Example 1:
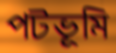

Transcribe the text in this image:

পটভূমি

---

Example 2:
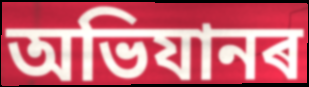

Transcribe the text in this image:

অভিযানৰ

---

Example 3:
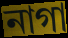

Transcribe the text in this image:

নাগা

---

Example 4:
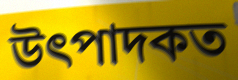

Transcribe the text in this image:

উৎপাদকত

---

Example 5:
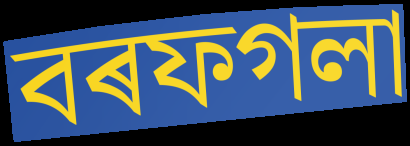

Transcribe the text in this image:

বৰফগলা